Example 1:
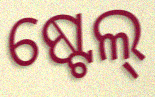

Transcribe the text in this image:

ଷ୍ଟେଲ୍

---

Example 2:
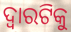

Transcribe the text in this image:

ଦ୍ଵାରଟିକୁ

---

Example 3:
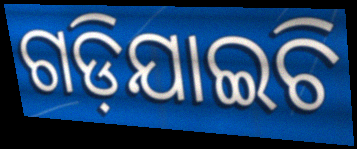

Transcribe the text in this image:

ଗଡ଼ିଯାଇଚି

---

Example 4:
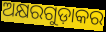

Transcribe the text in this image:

ଅକ୍ଷରଗୁଡ଼ାକର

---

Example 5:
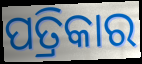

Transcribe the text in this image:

ପତ୍ରିକାର